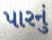
પારનું